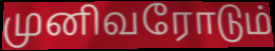
முனிவரோடும்